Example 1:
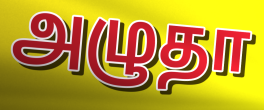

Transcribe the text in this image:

அழுதா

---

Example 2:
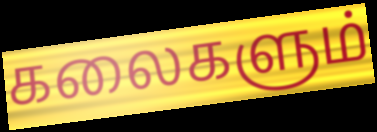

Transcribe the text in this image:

கலைகளும்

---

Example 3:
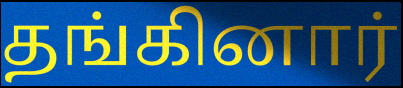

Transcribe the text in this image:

தங்கினார்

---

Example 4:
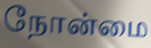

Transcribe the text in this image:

நோன்மை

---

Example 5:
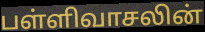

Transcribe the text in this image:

பள்ளிவாசலின்